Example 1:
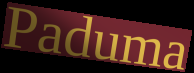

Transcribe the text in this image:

Paduma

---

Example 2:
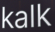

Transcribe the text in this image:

kalk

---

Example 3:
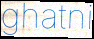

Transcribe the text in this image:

ghatni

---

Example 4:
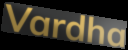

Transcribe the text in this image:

Vardha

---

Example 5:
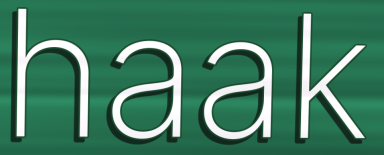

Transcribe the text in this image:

haak